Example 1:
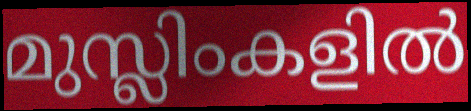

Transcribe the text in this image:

മുസ്ലിംകളിൽ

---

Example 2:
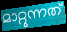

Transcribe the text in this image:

മാറ്റുന്നത്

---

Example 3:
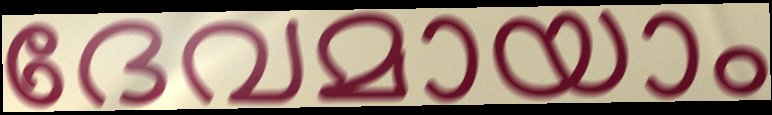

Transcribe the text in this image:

ദേവമായാം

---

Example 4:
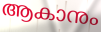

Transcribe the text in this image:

ആകാനും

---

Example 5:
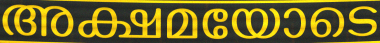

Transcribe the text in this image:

അക്ഷമയോടെ